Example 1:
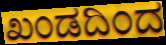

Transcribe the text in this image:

ಖಂಡದಿಂದ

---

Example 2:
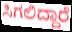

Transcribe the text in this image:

ಸಿಗಲಿದ್ದಾರೆ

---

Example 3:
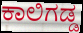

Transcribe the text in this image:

ಕಾಲಿಗಡ್ಡ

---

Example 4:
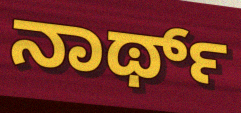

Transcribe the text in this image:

ನಾರ್ಥ್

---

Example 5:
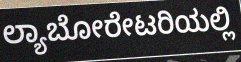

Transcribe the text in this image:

ಲ್ಯಾಬೋರೇಟರಿಯಲ್ಲಿ